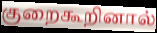
குறைகூறினால்